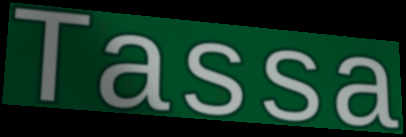
Tassa